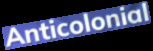
Anticolonial